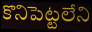
కొనిపెట్టలేని